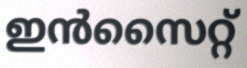
ഇൻസൈറ്റ്